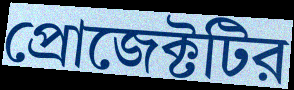
প্রোজেক্টটির